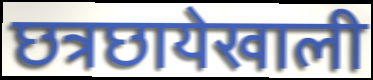
छत्रछायेखाली